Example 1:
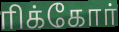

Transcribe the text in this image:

ரிக்கோர்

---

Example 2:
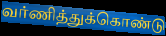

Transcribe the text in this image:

வர்ணித்துக்கொண்டு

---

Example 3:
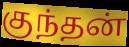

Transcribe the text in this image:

குந்தன்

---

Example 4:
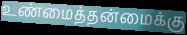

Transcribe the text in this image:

உண்மைத்தன்மைக்கு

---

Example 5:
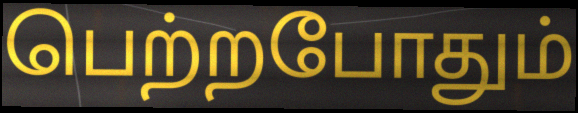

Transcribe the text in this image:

பெற்றபோதும்